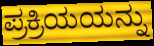
ಪ್ರಕ್ರಿಯಯನ್ನು